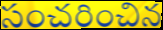
సంచరించిన